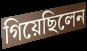
গিয়েছিলেন